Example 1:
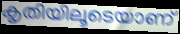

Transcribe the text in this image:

കൃതിയിലൂടെയാണ്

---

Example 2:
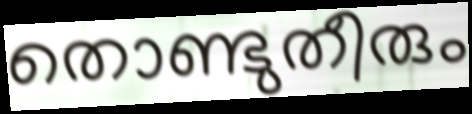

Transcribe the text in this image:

തൊണ്ടുതീരും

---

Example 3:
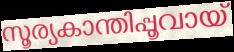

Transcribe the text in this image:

സൂര്യകാന്തിപ്പൂവായ്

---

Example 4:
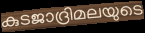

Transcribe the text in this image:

കുടജാദ്രിമലയുടെ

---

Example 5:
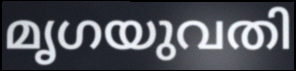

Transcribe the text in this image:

മൃഗയുവതി